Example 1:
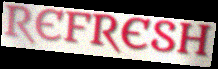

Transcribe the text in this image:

REFRESH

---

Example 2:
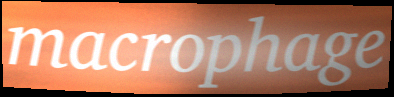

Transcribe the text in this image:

macrophage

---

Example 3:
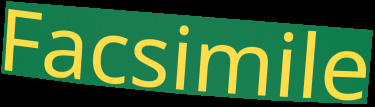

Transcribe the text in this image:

Facsimile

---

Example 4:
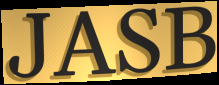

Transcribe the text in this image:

JASB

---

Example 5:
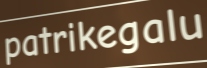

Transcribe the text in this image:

patrikegalu